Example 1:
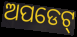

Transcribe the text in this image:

ଅପଡେଟ୍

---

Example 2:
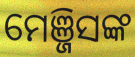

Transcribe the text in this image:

ମେଞ୍ଜିସଙ୍କ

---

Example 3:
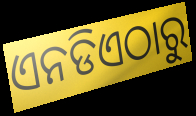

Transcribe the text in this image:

ଏନଡିଏଠାରୁ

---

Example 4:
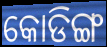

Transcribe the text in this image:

କୋଡିଙ୍ଗ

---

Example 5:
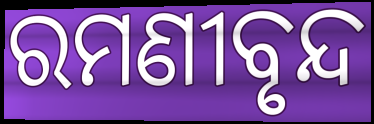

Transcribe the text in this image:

ରମଣୀବୃନ୍ଦ